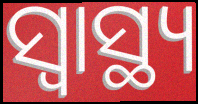
ସ୍ୱାସ୍ଥ୍ୟ